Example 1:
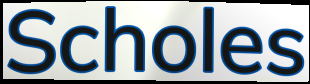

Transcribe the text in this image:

Scholes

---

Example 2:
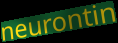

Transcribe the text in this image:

neurontin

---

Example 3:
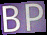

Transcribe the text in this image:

BP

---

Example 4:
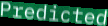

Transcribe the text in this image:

Predicted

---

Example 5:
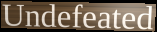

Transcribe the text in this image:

Undefeated